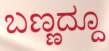
ಬಣ್ಣದ್ದೂ